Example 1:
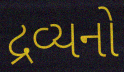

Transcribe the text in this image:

દ્રવ્યનો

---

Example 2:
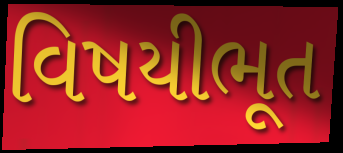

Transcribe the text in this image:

વિષયીભૂત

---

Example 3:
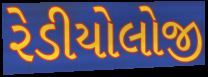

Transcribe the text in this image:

રેડીયોલોજી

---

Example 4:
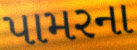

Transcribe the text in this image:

પામરના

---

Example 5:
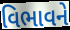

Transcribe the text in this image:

વિભાવને